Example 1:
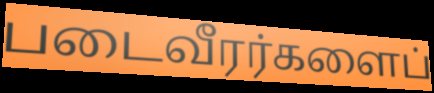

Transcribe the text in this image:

படைவீரர்களைப்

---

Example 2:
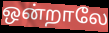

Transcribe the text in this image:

ஒன்றாலே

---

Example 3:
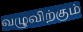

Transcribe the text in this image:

வழுவிற்கும்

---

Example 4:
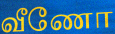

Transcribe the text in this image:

வீணோ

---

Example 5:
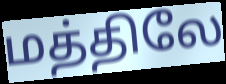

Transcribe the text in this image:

மத்திலே